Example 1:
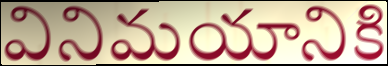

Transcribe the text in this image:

వినిమయానికి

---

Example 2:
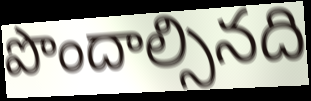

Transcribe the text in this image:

పొందాల్సినది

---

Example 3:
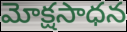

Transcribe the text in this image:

మోక్షసాధన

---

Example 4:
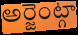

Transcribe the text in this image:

అర్జెంట్గా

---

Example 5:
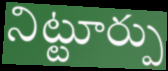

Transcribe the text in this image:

నిట్టూర్పు